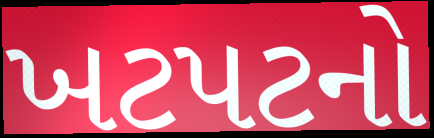
ખટપટનો